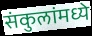
संकुलांमध्ये